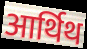
आर्थिथ